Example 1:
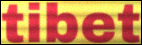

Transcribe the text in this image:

tibet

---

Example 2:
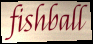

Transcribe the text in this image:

fishball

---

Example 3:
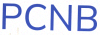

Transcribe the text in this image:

PCNB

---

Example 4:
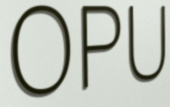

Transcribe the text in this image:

OPU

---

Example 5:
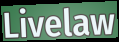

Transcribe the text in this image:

Livelaw